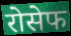
रोसेफ